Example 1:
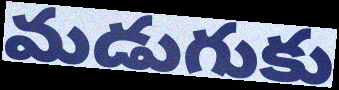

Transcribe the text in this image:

మడుగుకు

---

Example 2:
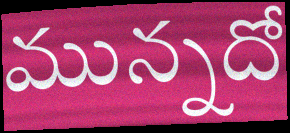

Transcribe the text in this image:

మున్నదో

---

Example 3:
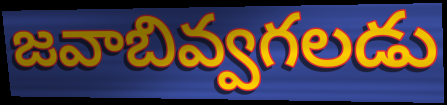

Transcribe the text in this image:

జవాబివ్వగలడు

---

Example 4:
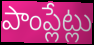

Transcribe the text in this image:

పాంప్లేట్లు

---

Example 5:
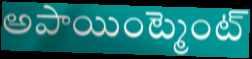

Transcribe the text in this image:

అపాయింట్మెంట్